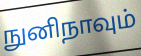
நுனிநாவும்